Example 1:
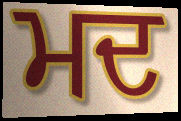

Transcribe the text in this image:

ਮਦ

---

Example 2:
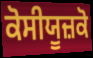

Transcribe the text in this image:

ਕੋਸੀਯੂਜ਼ਕੋ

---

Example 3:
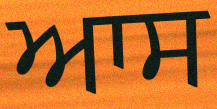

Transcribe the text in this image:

ਆਸ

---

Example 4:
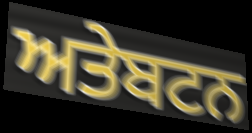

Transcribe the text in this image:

ਅਤੇਬਟਨ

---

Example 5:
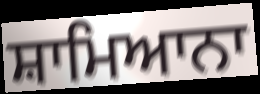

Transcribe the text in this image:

ਸ਼ਾਮਿਆਨਾ